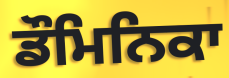
ਡੌਮਿਨਿਕਾ